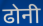
ढोनी